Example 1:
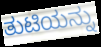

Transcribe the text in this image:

ತುಟಿಯನ್ನು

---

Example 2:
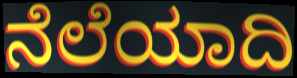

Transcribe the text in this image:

ನೆಲೆಯಾದಿ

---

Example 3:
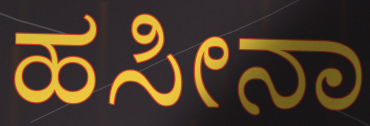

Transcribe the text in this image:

ಹಸೀನಾ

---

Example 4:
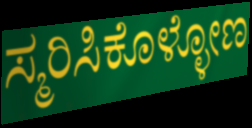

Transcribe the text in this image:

ಸ್ಮರಿಸಿಕೊಳ್ಳೋಣ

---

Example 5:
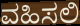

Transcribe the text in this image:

ವಹಿಸಲಿ